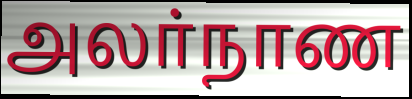
அலர்நாண